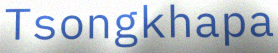
Tsongkhapa